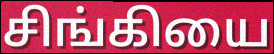
சிங்கியை